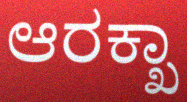
ಆರಕ್ಖಾ